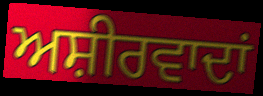
ਅਸ਼ੀਰਵਾਦਾਂ